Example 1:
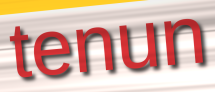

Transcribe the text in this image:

tenun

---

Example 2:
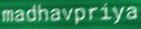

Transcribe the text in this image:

madhavpriya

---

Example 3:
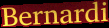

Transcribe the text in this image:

Bernardi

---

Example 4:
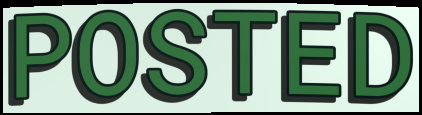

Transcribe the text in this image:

POSTED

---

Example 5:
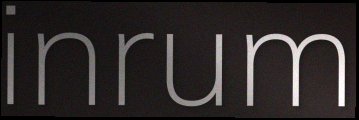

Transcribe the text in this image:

inrum